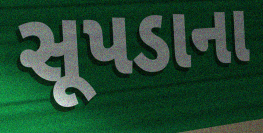
સૂપડાના